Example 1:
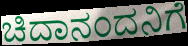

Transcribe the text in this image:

ಚಿದಾನಂದನಿಗೆ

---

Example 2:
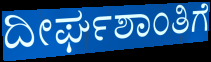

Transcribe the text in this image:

ದೀರ್ಘಶಾಂತಿಗೆ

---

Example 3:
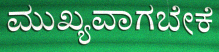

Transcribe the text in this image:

ಮುಖ್ಯವಾಗಬೇಕೆ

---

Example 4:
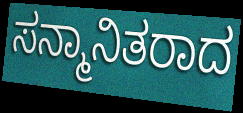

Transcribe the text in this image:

ಸನ್ಮಾನಿತರಾದ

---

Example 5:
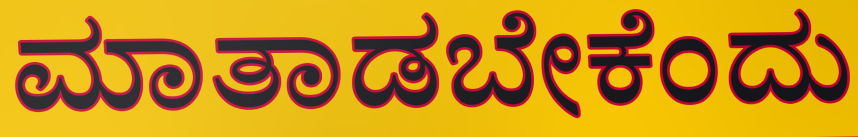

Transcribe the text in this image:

ಮಾತಾಡಬೇಕೆಂದು